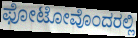
ಫೋಟೋವೊಂದರಲ್ಲಿ